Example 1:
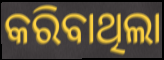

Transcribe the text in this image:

କରିବାଥିଲା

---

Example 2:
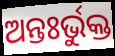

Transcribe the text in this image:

ଅନ୍ତଃର୍ଭୁକ୍ତ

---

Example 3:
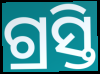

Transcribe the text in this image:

ଗ୍ରସ୍ତି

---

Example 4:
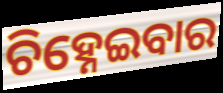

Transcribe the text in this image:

ଚିହ୍ନେଇବାର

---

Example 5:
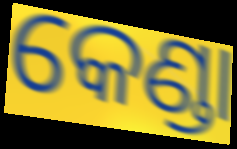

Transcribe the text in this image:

କେଣ୍ଡା